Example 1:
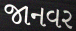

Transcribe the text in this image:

જાનવર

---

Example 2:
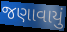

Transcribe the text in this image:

જણાવાયું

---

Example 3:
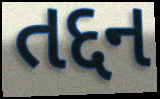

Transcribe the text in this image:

તદ્દન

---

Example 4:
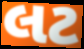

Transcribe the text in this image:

લટ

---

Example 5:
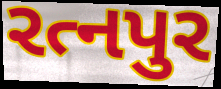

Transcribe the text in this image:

રત્નપુર